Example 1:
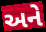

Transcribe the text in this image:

અને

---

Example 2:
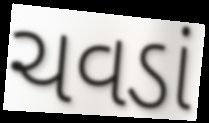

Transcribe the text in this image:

ચવડાં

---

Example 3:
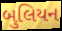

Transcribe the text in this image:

બુલિયન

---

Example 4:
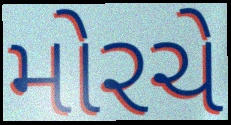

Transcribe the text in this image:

મોરચે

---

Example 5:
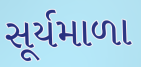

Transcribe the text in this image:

સૂર્યમાળા